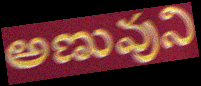
అణువుని